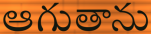
ఆగుతాను